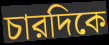
চারদিকে